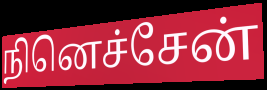
நினெச்சேன்